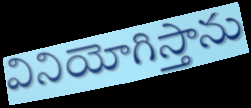
వినియోగిస్తాను